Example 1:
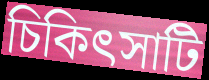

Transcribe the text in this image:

চিকিৎসাটি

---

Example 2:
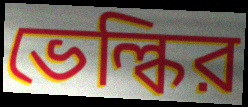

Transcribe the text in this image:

ভেল্কির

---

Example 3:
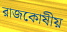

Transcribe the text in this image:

রাজকোষীয়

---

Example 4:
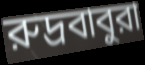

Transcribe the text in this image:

রুদ্রবাবুরা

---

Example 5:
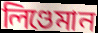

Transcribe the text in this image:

লিণ্ডেমান